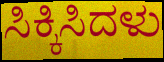
ಸಿಕ್ಕಿಸಿದಳು